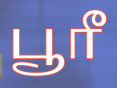
பூரீ